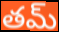
తమ్